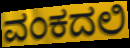
ವಂಕದಲಿ